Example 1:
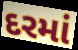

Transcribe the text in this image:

દરમાં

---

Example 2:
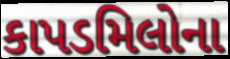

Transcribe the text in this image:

કાપડમિલોના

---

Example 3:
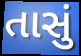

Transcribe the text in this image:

તાસું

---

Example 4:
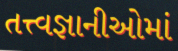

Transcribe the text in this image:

તત્ત્વજ્ઞાનીઓમાં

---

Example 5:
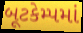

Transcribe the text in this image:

બૂટકેમ્પમાં